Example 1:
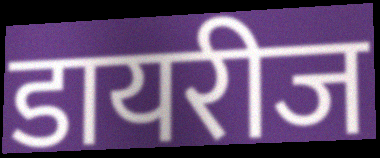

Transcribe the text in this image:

डायरीज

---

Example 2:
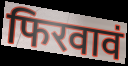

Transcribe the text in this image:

फिरवावं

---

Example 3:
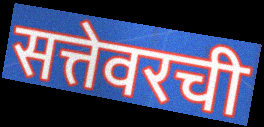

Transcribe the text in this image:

सत्तेवरची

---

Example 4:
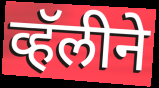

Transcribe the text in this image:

व्हॅलीने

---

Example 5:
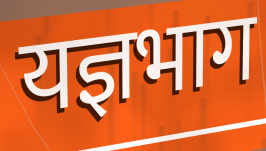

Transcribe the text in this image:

यज्ञभाग